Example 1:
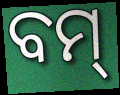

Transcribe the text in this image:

ବମ୍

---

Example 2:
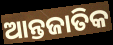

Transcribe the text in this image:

ଆନ୍ତଜାତିକ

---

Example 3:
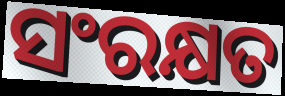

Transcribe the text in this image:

ସଂରକ୍ଷତ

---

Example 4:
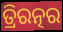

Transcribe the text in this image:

ତ୍ରିରତ୍ନର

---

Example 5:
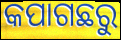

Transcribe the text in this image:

କପାଗଛରୁ